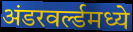
अंडरवर्ल्डमध्ये